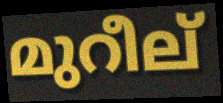
മുറീല്